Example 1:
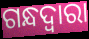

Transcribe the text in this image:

ଗନ୍ଧଦ୍ୱାରା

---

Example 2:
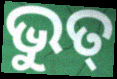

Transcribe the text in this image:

ଭୁତ୍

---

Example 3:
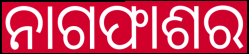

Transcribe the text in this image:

ନାଗଫାଶର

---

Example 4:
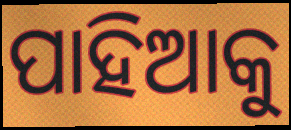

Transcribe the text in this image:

ପାହିଆକୁ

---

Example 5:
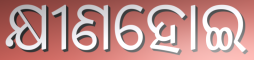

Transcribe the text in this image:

କ୍ଷୀଣହୋଇ